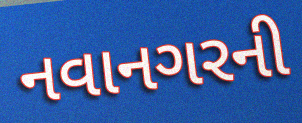
નવાનગરની